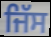
ਜਿੱਸ